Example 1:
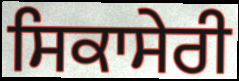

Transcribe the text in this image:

ਸਿਕਾਸੇਰੀ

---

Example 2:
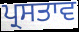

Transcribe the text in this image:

ਪ੍ਰਸਤਾਵ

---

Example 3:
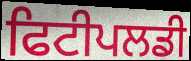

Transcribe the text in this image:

ਫਿਟੀਪਲਡੀ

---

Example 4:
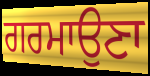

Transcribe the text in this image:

ਗਰਮਾਉਣਾ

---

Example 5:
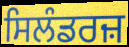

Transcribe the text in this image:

ਸਿਲੰਡਰਜ਼